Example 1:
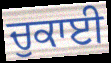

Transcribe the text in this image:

ਚੁਕਾਈ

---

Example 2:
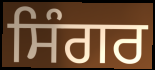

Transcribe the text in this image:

ਸਿੰਗਰ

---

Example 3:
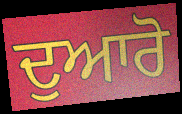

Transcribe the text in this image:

ਦੁਆਰੋ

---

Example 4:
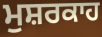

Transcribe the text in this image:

ਮੁਸ਼ਰਕਾਹ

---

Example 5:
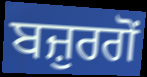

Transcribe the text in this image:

ਬਜ਼ੁਰਗੋਂ